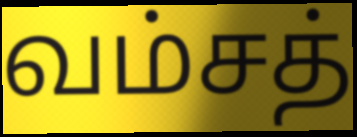
வம்சத்